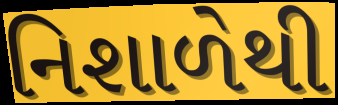
નિશાળેથી